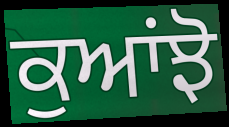
ਕੁਆਂਝੋ